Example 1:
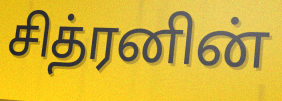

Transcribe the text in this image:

சித்ரனின்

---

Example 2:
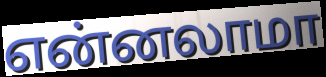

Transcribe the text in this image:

என்னலாமா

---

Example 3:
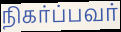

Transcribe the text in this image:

நிகர்ப்பவர்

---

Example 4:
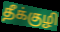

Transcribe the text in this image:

தீக்குழி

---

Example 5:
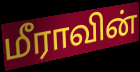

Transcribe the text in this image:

மீராவின்